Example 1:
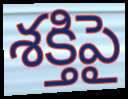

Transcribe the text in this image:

శక్తిపై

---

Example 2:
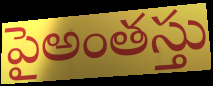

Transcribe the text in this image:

పైఅంతస్తు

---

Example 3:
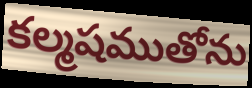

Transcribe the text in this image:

కల్మషముతోను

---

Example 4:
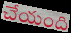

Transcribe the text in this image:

చేయంది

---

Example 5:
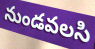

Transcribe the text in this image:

నుండవలసి